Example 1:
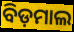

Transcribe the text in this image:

ବିଡ଼ମାଲ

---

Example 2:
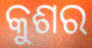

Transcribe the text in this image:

କୁଶର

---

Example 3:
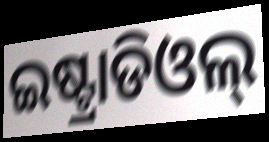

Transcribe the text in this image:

ଇଷ୍ଟ୍ରାଡିଓଲ୍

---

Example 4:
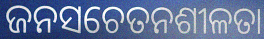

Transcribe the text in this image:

ଜନସଚେତନଶୀଳତା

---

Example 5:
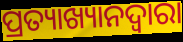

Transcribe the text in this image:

ପ୍ରତ୍ୟାଖ୍ୟାନଦ୍ଵାରା